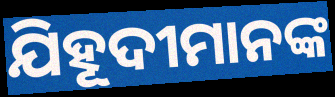
ଯିହୂଦୀମାନଙ୍କ